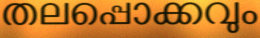
തലപ്പൊക്കവും